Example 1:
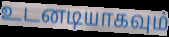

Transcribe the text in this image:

உடனடியாகவும்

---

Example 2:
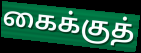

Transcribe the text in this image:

கைக்குத்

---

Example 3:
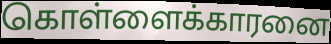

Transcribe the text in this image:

கொள்ளைக்காரனை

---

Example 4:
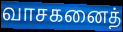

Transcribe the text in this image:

வாசகனைத்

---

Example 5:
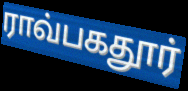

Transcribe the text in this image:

ராவ்பகதூர்